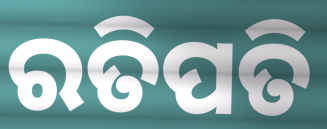
ରତିପତି